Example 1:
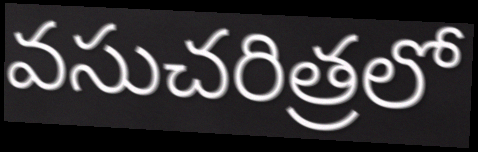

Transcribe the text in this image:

వసుచరిత్రలో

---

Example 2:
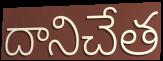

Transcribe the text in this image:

దానిచేత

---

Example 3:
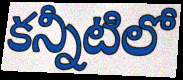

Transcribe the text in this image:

కన్నీటిలో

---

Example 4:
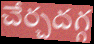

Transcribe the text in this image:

చేర్చదగ్గ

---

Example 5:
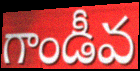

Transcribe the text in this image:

గాండీవ